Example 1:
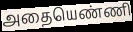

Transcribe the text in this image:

அதையெண்ணி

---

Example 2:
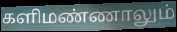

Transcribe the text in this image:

களிமண்ணாலும்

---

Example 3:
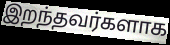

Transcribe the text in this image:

இறந்தவர்களாக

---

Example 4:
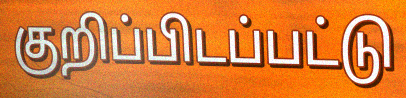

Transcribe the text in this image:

குறிப்பிடப்பட்டு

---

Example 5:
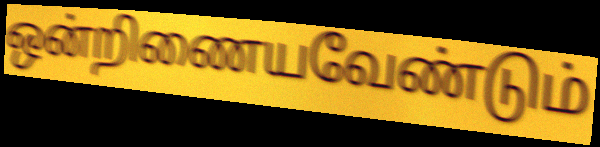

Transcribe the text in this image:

ஒன்றிணையவேண்டும்